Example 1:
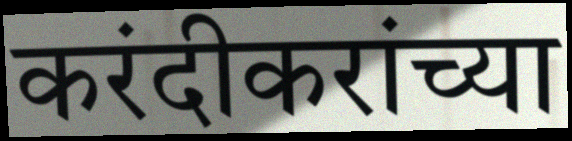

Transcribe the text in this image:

करंदीकरांच्या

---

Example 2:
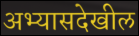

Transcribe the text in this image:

अभ्यासदेखील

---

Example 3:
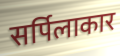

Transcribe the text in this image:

सर्पिलाकार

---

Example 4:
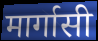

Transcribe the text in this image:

मार्गासी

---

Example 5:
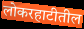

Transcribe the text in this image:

लोकरहाटीतील